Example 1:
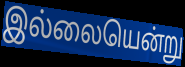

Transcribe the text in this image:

இல்லையென்று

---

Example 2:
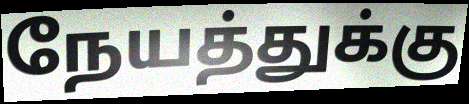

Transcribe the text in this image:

நேயத்துக்கு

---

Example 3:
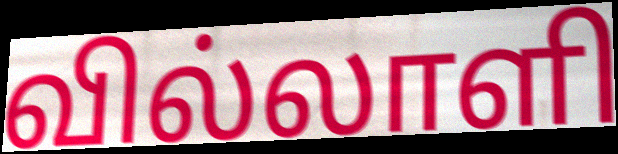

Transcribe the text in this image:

வில்லாளி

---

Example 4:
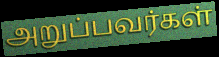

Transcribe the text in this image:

அறுப்பவர்கள்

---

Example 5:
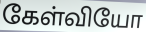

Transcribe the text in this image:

கேள்வியோ